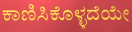
ಕಾಣಿಸಿಕೊಳ್ಳದೆಯೇ